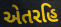
એતરહિ